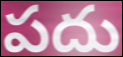
పదు